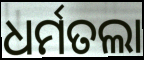
ଧର୍ମତଲା